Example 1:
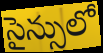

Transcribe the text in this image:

సైన్సులో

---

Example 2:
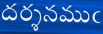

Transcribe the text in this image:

దర్శనముఁ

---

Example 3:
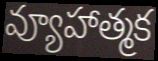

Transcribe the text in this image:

వ్యూహాత్మక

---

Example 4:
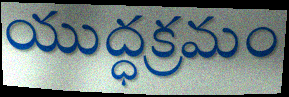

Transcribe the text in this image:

యుద్ధక్రమం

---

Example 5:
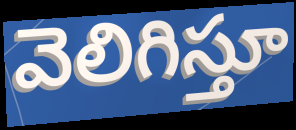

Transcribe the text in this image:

వెలిగిస్తూ